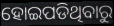
ହୋଇପଡିଥିବାରୁ